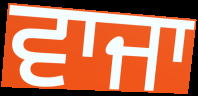
ਵਾਜਾ